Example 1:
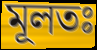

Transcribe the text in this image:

মূলতঃ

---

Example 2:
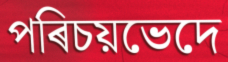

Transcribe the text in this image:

পৰিচয়ভেদে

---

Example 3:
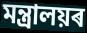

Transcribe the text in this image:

মন্ত্ৰালয়ৰ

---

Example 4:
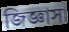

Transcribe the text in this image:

জিজ্ঞাসা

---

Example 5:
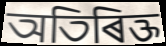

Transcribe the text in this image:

অতিৰিক্ত